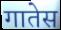
गातेस